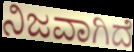
ನಿಜವಾಗಿದೆ